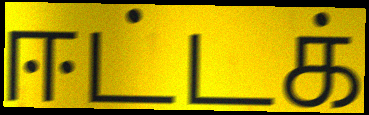
ஈட்டக்